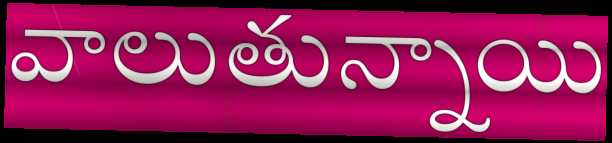
వాలుతున్నాయి